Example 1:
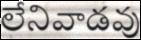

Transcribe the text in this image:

లేనివాడవు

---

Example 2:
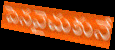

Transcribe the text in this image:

పెనవైచుకునే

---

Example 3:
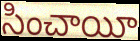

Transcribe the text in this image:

సించాయీ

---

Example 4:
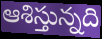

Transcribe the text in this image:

ఆశిస్తున్నది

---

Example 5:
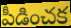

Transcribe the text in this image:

పీడించక